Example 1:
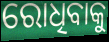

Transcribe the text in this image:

ରୋଧିବାକୁ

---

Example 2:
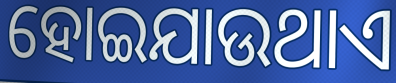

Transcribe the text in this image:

ହୋଇଯାଉଥାଏ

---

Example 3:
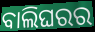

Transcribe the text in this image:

ବାଲିଘରର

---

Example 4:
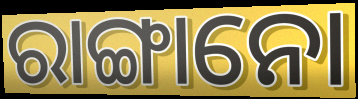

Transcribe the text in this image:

ରାଙ୍ଗାନୋ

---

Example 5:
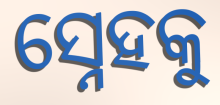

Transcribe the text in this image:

ସ୍ନେହକୁ